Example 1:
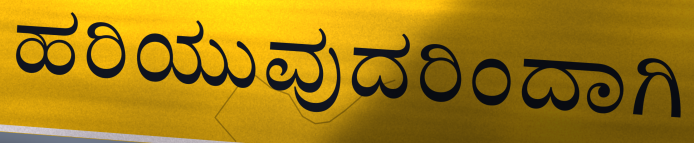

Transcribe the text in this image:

ಹರಿಯುವುದರಿಂದಾಗಿ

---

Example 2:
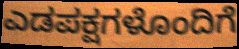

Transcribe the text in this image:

ಎಡಪಕ್ಷಗಳೊಂದಿಗೆ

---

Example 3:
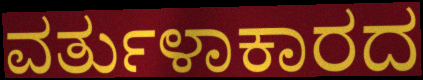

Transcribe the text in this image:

ವರ್ತುಳಾಕಾರದ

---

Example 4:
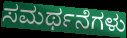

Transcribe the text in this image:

ಸಮರ್ಥನೆಗಳು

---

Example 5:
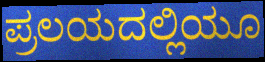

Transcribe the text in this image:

ಪ್ರಲಯದಲ್ಲಿಯೂ